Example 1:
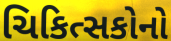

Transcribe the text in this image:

ચિકિત્સકોનો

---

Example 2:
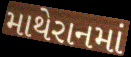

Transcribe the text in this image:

માથેરાનમાં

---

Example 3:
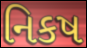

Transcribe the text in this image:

નિકષ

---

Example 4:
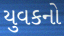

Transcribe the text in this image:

યુવકનો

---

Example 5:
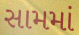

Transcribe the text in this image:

સામમાં